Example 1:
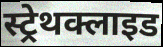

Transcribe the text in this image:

स्ट्रेथक्लाइड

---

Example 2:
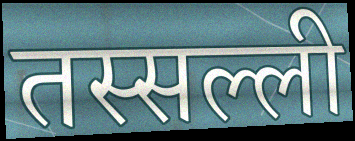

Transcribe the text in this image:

तस्सल्ली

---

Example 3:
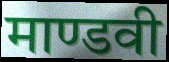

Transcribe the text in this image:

माण्डवी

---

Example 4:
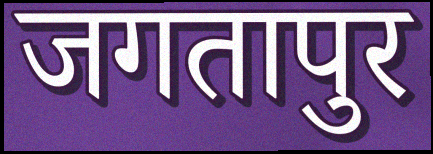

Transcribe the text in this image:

जगतापुर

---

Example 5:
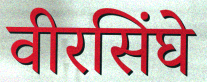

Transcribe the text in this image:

वीरसिंघे